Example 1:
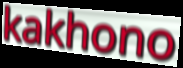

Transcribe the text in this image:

kakhono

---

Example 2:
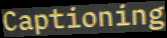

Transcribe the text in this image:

Captioning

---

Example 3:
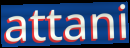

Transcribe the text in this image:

attani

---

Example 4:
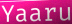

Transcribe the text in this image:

Yaaru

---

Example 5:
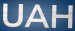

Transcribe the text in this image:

UAH